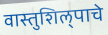
वास्तुशिल्पाचे